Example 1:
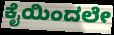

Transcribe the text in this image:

ಕೈಯಿಂದಲೇ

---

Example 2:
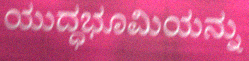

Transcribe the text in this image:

ಯುದ್ಧಭೂಮಿಯನ್ನು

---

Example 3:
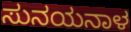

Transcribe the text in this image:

ಸುನಯನಾಳ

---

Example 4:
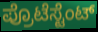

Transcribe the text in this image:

ಪ್ರೊಟೆಸ್ಟೆಂಟ್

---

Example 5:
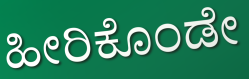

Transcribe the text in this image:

ಹೀರಿಕೊಂಡೇ